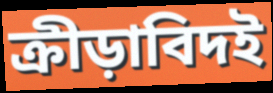
ক্রীড়াবিদই